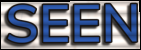
SEEN